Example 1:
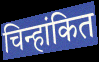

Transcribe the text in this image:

चिन्हांकित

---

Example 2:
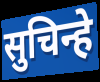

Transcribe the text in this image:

सुचिन्हे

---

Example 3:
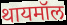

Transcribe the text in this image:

थायमॉल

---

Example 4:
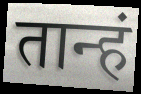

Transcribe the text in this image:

तान्हं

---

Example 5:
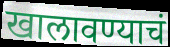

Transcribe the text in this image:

खालावण्याचं